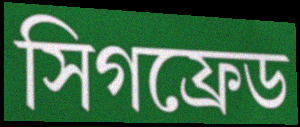
সিগফ্রেড